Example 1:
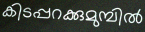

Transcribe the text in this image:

കിടപ്പറക്കുമുമ്പിൽ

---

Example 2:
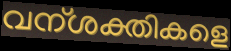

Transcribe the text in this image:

വന്ശക്തികളെ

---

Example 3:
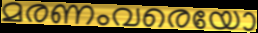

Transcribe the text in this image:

മരണംവരെയോ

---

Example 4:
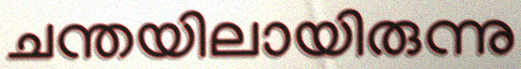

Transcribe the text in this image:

ചന്തയിലായിരുന്നു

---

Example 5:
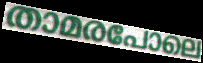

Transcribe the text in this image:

താമരപോലെ